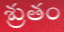
శ్రుతం